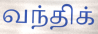
வந்திக்